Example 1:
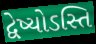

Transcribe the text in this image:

દ્વેષ્યોઽસ્તિ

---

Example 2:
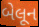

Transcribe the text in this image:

બેલૂન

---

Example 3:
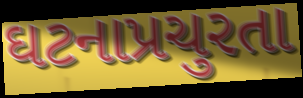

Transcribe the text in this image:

ઘટનાપ્રચુરતા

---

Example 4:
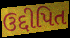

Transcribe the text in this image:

ઉદ્દીપિત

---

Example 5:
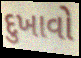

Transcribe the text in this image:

દુખાવો